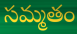
సమ్మతం